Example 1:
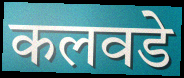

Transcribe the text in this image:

कलवडे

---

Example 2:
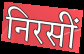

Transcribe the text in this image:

निरसीं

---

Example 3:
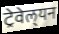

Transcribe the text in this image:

ट्रेवेल्यन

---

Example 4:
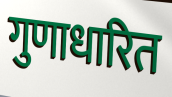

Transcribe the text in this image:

गुणाधारित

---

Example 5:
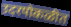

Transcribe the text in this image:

उदरपोकळीत